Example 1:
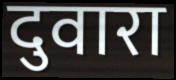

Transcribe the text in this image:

दुवारा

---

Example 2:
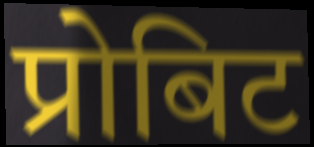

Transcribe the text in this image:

प्रोबिट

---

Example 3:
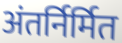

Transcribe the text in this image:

अंतर्निर्मित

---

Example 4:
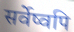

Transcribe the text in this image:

सर्वेष्वपि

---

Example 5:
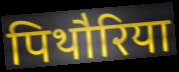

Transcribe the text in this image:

पिथौरिया